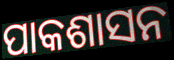
ପାକଶାସନ